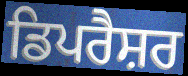
ਡਿਪਰੈਸ਼ਰ